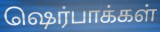
ஷெர்பாக்கள்